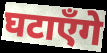
घटाएँगे